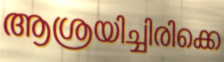
ആശ്രയിച്ചിരിക്കെ